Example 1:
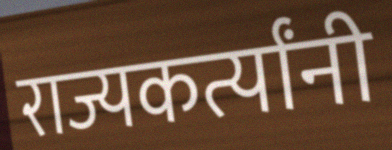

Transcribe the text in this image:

राज्यकर्त्यांनी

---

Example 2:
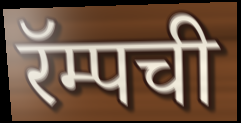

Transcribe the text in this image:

रॅम्पची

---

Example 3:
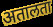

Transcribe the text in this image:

अतालता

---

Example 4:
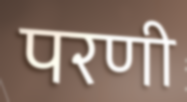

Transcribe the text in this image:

परणी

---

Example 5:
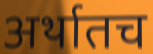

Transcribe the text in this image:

अर्थातच